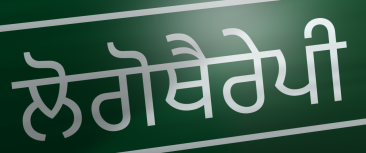
ਲੋਗੋਥੈਰੇਪੀ